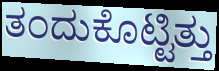
ತಂದುಕೊಟ್ಟಿತ್ತು